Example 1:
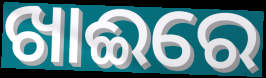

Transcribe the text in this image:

ଖାଈରେ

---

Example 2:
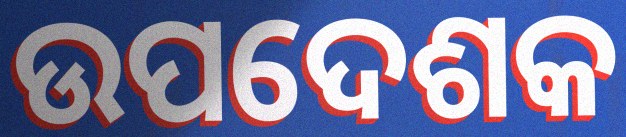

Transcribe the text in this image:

ଉପଦେଶକ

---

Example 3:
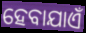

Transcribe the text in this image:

ହେବାଯାଏଁ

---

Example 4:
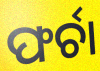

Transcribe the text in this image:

ଫର୍ଚା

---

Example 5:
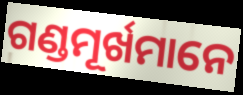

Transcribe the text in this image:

ଗଣ୍ଡମୂର୍ଖମାନେ